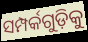
ସମ୍ପର୍କଗୁଡ଼ିକୁ